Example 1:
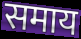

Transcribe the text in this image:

समाय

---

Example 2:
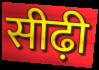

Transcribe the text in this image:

सीढ़ी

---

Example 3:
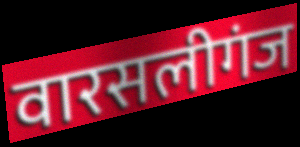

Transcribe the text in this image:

वारसलीगंज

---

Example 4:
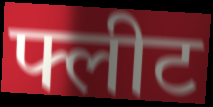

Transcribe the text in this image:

फ्लीट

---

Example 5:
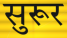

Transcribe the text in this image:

सुरूर